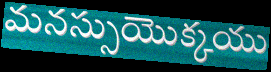
మనస్సుయొక్కయు